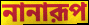
নানারূপ